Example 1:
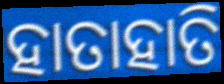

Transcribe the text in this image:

ହାତାହାତି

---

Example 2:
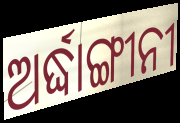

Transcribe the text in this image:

ଅର୍ଦ୍ଧାଙ୍ଗୀନୀ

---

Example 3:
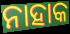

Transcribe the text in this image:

ନାହାକ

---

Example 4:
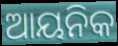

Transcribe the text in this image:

ଆୟନିକ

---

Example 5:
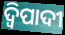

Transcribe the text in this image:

ଦ୍ୱିପାଦୀ